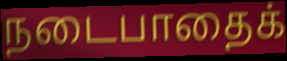
நடைபாதைக்